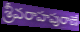
శ్రీవరాహపురాణే